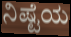
ನಿಷ್ಟೆಯ